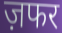
ज़फर